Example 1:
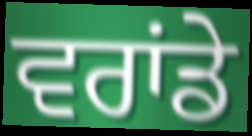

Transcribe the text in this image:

ਵਰਾਂਡੇ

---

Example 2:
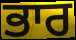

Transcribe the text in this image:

ਭਾਰ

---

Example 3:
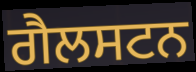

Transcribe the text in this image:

ਗੈਲਸਟਨ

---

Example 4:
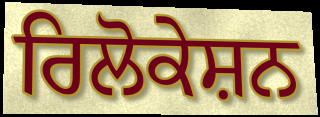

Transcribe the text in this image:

ਰਿਲੋਕੇਸ਼ਨ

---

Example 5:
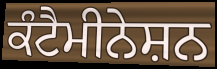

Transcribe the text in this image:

ਕੰਟੈਮੀਨੇਸ਼ਨ